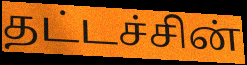
தட்டச்சின்